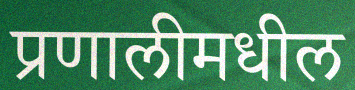
प्रणालीमधील